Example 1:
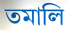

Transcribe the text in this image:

তমালি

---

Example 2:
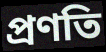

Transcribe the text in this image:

প্রণতি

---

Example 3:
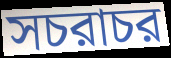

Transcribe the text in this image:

সচরাচর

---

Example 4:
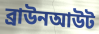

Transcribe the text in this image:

ব্রাউনআউট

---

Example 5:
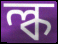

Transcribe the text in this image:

ল্ক